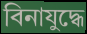
বিনাযুদ্ধে